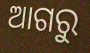
ଆଗରୁ